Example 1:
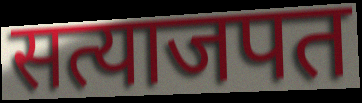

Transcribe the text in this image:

सत्याजपत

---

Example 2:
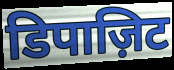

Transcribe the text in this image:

डिपाज़िट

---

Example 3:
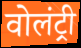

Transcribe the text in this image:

वोलंट्री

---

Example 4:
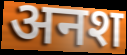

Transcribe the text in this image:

अनश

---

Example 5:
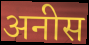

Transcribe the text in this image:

अनीस